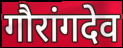
गौरांगदेव